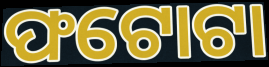
ଫଟୋଟା